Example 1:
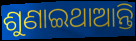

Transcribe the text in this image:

ଶୁଣାଇଥାଆନ୍ତି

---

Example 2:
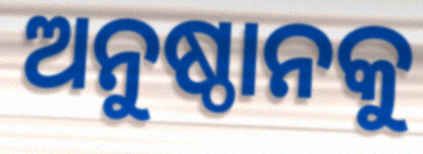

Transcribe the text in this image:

ଅନୁଷ୍ଠାନକୁ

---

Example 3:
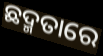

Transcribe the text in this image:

ଛଦ୍ମତାରେ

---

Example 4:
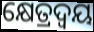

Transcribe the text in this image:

କ୍ଷେତ୍ରଦ୍ଵୟ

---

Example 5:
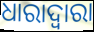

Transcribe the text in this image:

ଧାରାଦ୍ୱାରା